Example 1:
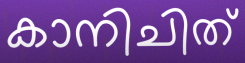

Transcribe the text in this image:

കാനിചിത്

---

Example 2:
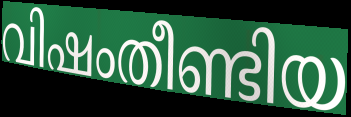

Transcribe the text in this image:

വിഷംതീണ്ടിയ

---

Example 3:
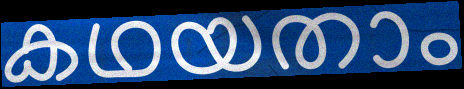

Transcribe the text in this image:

കഥയതാം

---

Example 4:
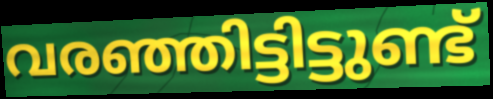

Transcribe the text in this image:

വരഞ്ഞിട്ടിട്ടുണ്ട്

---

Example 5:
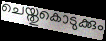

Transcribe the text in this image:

ചെയ്തുകൊടുക്കും